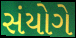
સંયોગે